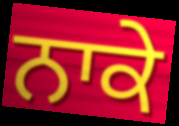
ਨਾਕੇ